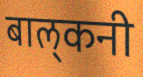
बाल्कनी